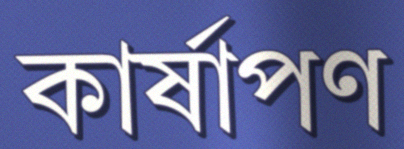
কার্ষাপণ